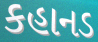
કહાનડ